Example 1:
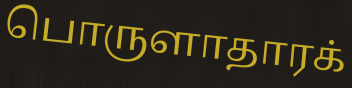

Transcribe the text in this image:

பொருளாதாரக்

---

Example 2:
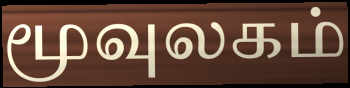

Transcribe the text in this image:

மூவுலகம்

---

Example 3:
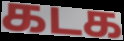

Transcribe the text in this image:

கடக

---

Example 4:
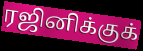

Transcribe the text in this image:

ரஜினிக்குக்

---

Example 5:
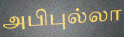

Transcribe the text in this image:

அபிபுல்லா